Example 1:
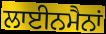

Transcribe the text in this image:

ਲਾਈਨਮੈਨਾਂ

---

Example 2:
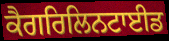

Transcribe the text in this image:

ਕੈਗਰਿਲਿਨਟਾਈਡ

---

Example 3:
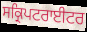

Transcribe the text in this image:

ਸਕ੍ਰਿਪਟਰਾਈਟਰ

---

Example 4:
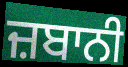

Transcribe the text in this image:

ਜ਼ਬਾਨੀ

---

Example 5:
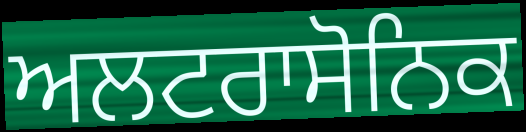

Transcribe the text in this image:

ਅਲਟਰਾਸੋਨਿਕ